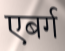
एबर्ग